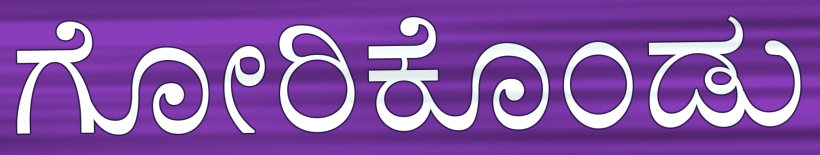
ಗೋರಿಕೊಂಡು